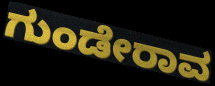
ಗುಂಡೇರಾವ